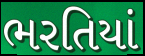
ભરતિયાં